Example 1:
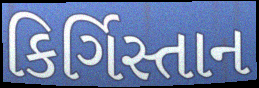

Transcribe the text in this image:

કિર્ગિસ્તાન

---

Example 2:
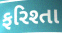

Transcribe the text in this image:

ફરિશ્તા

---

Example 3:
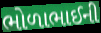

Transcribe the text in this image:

ભોળાભાઈની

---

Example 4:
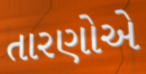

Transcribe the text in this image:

તારણોએ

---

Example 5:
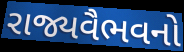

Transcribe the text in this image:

રાજ્યવૈભવનો